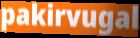
pakirvugal